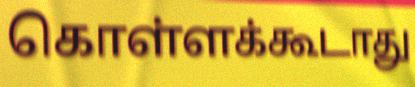
கொள்ளக்கூடாது